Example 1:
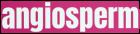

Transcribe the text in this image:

angiosperm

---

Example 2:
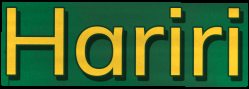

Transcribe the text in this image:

Hariri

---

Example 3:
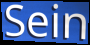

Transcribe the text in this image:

Sein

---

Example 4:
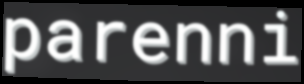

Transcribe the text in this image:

parenni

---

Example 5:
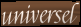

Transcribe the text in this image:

universel